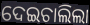
ଦେଇଚାଲିଲା